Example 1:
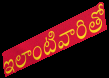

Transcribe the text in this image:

ఇలాంటివారితో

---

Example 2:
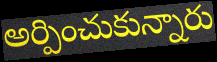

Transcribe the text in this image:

అర్పించుకున్నారు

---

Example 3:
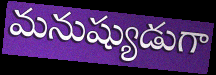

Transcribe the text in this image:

మనుష్యుడుగా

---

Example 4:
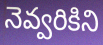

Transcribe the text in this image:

నెవ్వరికిని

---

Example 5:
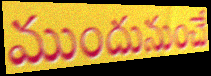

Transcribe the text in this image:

ముందునుంచే